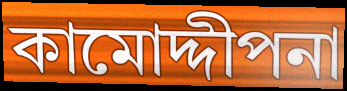
কামোদ্দীপনা